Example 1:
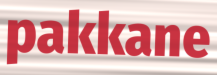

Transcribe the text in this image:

pakkane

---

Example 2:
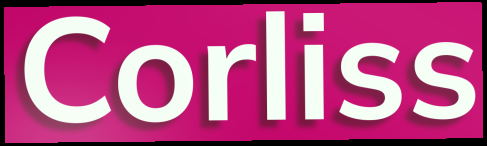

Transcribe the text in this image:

Corliss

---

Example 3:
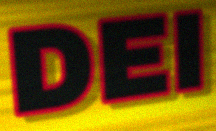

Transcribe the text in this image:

DEI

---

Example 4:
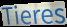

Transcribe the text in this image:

Tieres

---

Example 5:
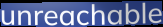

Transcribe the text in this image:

unreachable